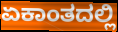
ಏಕಾಂತದಲ್ಲಿ